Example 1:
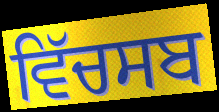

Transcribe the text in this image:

ਵਿੱਚਸਬ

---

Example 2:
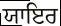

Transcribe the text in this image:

ਯਾਇਰ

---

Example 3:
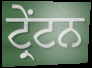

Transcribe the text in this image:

ਟ੍ਰੇਂਟਨ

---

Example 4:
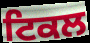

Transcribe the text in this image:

ਟਿਕਲ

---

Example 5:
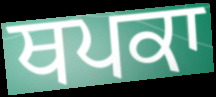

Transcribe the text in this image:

ਥਪਕਾ